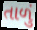
તાળું